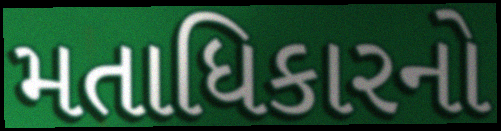
મતાધિકારનો